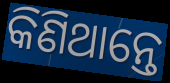
କିଣିଥାନ୍ତେ